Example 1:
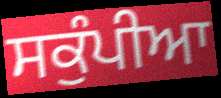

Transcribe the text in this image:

ਸਕੁੰਪੀਆ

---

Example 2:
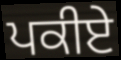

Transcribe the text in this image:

ਪਕੀਏ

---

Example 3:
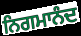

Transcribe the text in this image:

ਨਿਗਮਾਨੰਦ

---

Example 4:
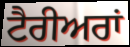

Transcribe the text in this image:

ਟੈਰੀਅਰਾਂ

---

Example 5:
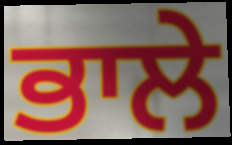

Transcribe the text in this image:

ਭਾਲੇ